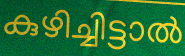
കുഴിച്ചിട്ടാൽ